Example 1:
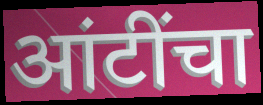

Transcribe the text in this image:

आंटींचा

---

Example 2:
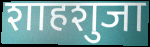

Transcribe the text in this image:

शाहशुजा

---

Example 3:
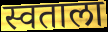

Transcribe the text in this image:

स्वताला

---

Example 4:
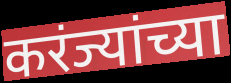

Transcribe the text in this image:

करंज्यांच्या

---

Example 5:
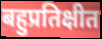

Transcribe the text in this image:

बहुप्रतिक्षीत